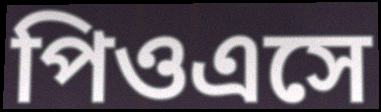
পিওএসে